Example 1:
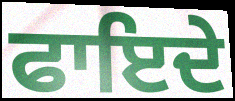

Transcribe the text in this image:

ਫਾਇਦੇ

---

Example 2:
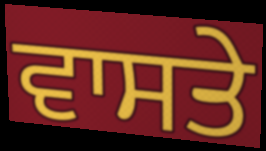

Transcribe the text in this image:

ਵਾਸਤੇ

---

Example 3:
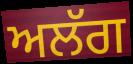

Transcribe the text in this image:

ਅਲੱਗ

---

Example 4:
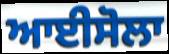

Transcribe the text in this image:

ਆਈਸੋਲਾ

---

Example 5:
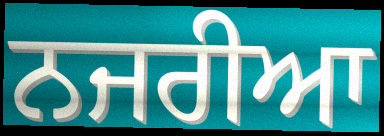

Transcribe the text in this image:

ਨਜਰੀਆ